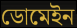
ডোমেইন